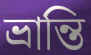
ভ্ৰান্তি